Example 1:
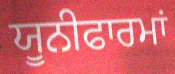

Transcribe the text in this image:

ਯੂਨੀਫਾਰਮਾਂ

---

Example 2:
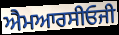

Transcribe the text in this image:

ਐਮਆਰਸੀਓਜੀ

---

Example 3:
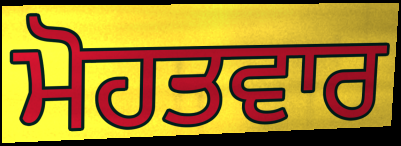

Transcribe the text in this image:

ਮੋਹਤਵਾਰ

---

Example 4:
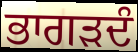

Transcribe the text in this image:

ਭਾਗੜਦੰ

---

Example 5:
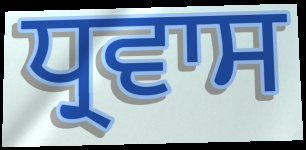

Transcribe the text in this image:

ਧ੍ਰਵਾਸ